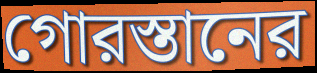
গোরস্তানের